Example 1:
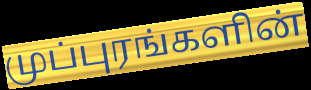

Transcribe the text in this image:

முப்புரங்களின்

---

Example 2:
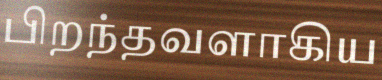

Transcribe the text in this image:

பிறந்தவளாகிய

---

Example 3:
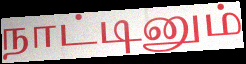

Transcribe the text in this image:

நாட்டினும்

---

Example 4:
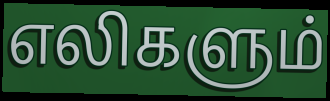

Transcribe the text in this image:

எலிகளும்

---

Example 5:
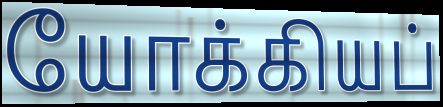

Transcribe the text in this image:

யோக்கியப்